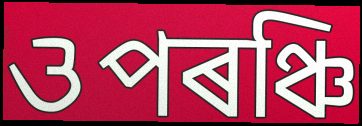
ওপৰঞ্চি